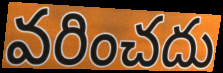
వరించదు